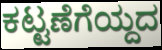
ಕಟ್ಟಣೆಗೆಯ್ದದ